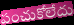
పంచుకోలేదు